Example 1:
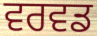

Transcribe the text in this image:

ਵਰਵਡ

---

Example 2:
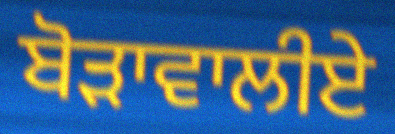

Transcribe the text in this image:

ਬੋੜਾਵਾਲੀਏ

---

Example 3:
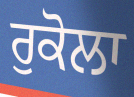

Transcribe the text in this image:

ਰੁਕੋਲਾ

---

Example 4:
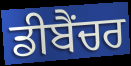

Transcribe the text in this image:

ਡੀਬੈਂਚਰ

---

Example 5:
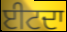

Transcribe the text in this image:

ਈਟਦਾ